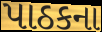
પાઠકના